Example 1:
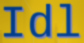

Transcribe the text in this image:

Idl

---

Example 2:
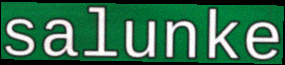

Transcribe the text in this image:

salunke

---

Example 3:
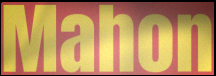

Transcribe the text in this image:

Mahon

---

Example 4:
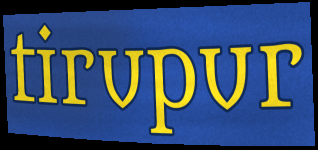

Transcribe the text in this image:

tirupur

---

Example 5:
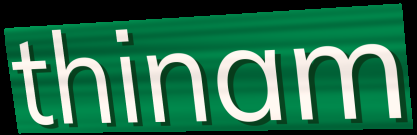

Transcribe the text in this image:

thinam